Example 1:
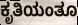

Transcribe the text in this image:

ಕೃತಿಯಂತೂ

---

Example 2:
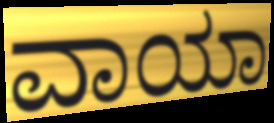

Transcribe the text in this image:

ವಾಯಾ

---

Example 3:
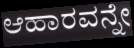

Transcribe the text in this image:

ಆಹಾರವನ್ನೇ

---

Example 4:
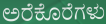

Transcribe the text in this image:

ಅರೆಕೊರೆಗಳು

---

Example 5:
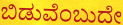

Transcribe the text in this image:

ಬಿಡುವೆಂಬುದೇ